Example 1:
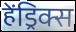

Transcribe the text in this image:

हेंड्रिक्स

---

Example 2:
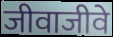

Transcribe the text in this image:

जीवाजीवे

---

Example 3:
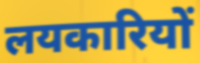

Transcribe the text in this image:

लयकारियों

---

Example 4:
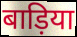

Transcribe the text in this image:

बाड़िया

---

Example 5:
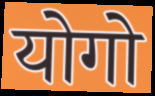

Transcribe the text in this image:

योगो